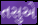
તસુએ